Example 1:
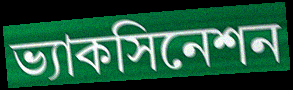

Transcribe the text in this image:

ভ্যাকসিনেশন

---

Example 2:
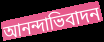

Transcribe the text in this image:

আনন্দাভিবাদন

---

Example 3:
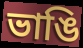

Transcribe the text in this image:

ভাঙি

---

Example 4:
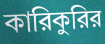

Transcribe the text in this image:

কারিকুরির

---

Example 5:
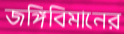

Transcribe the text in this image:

জঙ্গিবিমানের